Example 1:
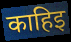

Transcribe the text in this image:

काहिइ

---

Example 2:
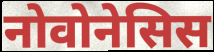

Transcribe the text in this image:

नोवोनेसिस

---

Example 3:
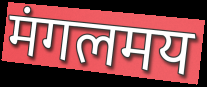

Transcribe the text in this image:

मंगलमय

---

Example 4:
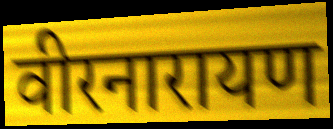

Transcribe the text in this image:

वीरनारायण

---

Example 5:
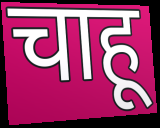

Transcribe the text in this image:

चाहू